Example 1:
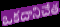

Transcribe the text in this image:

ఒకదానిచేత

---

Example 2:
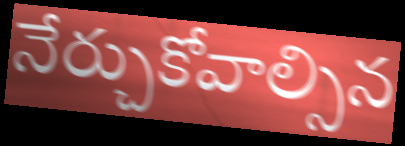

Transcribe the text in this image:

నేర్చుకోవాల్సిన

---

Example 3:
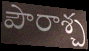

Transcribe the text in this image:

పౌరాశ్చ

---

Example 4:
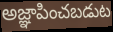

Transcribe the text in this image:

అజ్ఞాపించబడుట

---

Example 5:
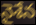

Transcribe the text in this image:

నైశేన